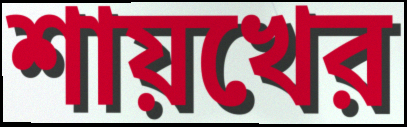
শায়খের